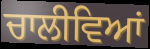
ਚਾਲੀਵਿਆਂ